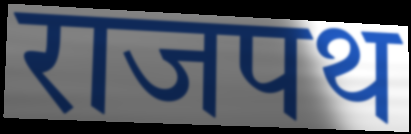
राजपथ